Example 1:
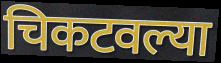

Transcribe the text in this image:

चिकटवल्या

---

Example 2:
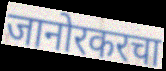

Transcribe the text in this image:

जानोरकरचा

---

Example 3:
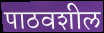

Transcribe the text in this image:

पाठवशील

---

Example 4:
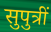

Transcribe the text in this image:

सुपुत्रीं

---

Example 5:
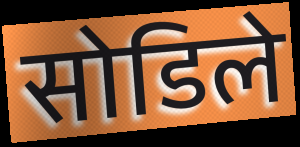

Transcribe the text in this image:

सोडिले